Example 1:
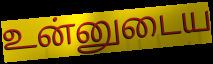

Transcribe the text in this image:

உன்னுடைய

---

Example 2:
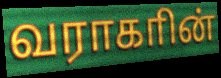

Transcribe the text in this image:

வராகரின்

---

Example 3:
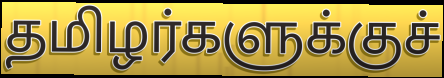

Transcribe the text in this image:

தமிழர்களுக்குச்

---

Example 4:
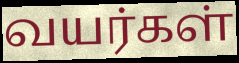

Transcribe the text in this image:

வயர்கள்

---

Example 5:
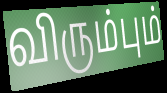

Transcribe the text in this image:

விரும்பும்